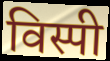
विस्पी